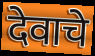
देवाचे